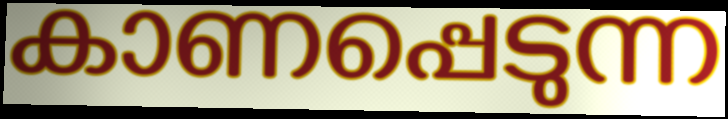
കാണപ്പെടുന്ന